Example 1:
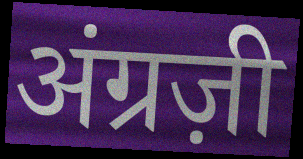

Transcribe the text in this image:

अंग्रज़ी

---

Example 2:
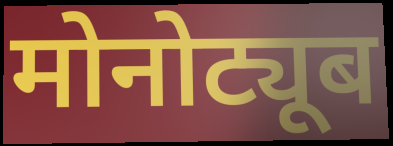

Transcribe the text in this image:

मोनोट्यूब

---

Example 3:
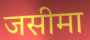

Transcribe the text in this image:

जसीमा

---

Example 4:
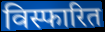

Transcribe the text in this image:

विस्फारित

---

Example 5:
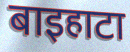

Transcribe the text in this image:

बाइहाटा